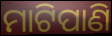
ମାଟିପାଣି